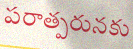
పరాత్పరునకు